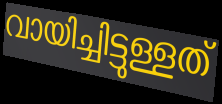
വായിച്ചിട്ടുള്ളത്